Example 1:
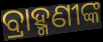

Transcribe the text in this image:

ବ୍ରାହ୍ମଣୀଙ୍କ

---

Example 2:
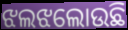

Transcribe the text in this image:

ଝଲଝଲୋଉଛି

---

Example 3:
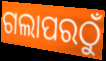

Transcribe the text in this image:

ଗଲାପରଠୁଁ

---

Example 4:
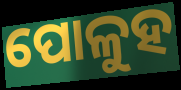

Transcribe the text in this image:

ପୋଳୁହ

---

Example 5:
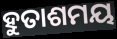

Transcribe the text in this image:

ହୁତାଶମୟ